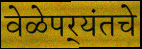
वेळेपर्यंतचे